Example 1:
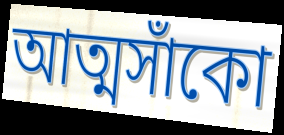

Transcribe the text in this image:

আত্মসাঁকো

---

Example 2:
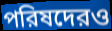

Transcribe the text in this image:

পরিষদেরও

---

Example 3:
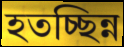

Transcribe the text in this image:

হতচ্ছিন্ন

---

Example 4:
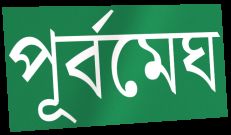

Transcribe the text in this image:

পূর্বমেঘ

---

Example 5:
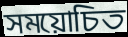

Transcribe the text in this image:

সময়োচিত